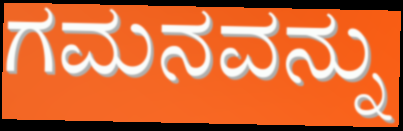
ಗಮನವನ್ನು